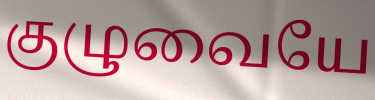
குழுவையே